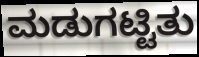
ಮಡುಗಟ್ಟಿತು